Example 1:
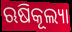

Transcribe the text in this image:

ଋଷିକୂଲ୍ୟା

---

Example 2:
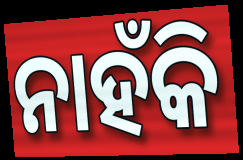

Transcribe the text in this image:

ନାହଁକି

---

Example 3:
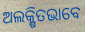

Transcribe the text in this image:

ଅଲକ୍ଷିତଭାବେ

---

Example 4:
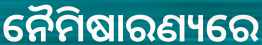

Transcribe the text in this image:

ନୈମିଷାରଣ୍ୟରେ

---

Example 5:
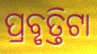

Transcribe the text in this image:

ପ୍ରବୃତ୍ତିଟା